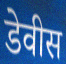
डेवीस